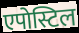
एपोस्टिल